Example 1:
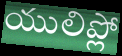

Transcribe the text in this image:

యులిప్లో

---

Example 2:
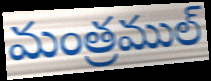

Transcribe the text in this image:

మంత్రముల్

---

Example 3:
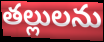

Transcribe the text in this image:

తల్లులను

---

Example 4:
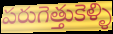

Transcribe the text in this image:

పరుగెత్తుకెళ్ళి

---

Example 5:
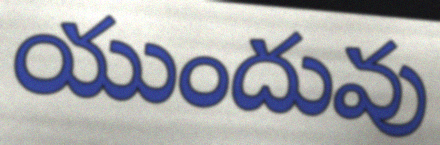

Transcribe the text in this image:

యుందువు